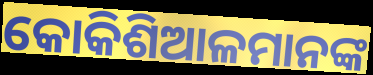
କୋକିଶିଆଳମାନଙ୍କ